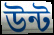
উন্ট